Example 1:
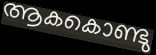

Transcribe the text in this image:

ആകകൊണ്ടു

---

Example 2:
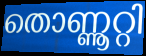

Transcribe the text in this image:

തൊണ്ണൂറ്റി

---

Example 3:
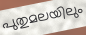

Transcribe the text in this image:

പുതുമലയിലും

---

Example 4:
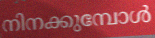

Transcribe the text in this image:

നിനക്കുമ്പോൾ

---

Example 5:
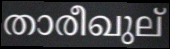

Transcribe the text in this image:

താരീഖുല്